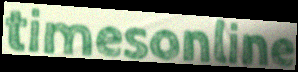
timesonline